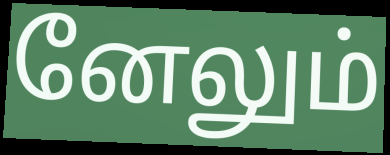
னேலும்